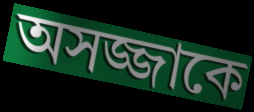
অসজ্জাকে